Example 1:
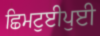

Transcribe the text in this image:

ਛਿਮਟੁਈਪੁਈ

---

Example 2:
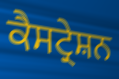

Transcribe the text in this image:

ਕੈਸਟ੍ਰੇਸ਼ਨ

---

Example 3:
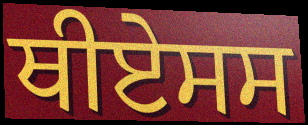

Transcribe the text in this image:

ਥੀਏਸਸ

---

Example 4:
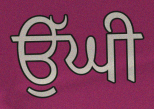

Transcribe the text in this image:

ਉੱਘੀ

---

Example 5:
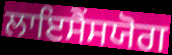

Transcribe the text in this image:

ਲਾਇਸੈਂਸਯੋਗ